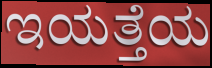
ಇಯತ್ತೆಯ